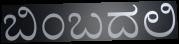
ಬಿಂಬದಲಿ